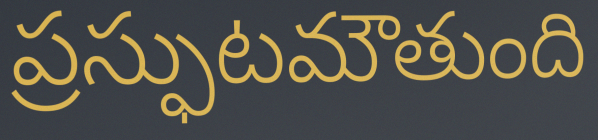
ప్రస్ఫుటమౌతుంది